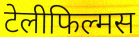
टेलीफिल्मस